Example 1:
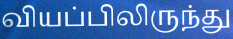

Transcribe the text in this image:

வியப்பிலிருந்து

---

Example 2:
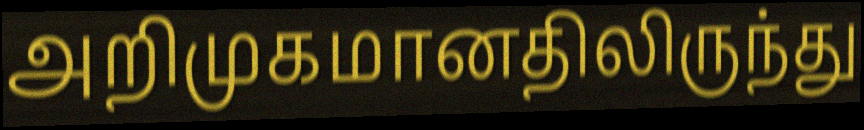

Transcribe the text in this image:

அறிமுகமானதிலிருந்து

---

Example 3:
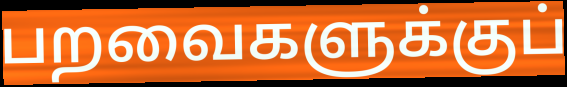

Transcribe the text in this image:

பறவைகளுக்குப்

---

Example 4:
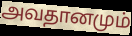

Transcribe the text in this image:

அவதானமும்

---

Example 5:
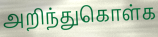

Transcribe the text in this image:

அறிந்துகொள்க